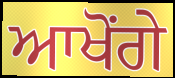
ਆਖੋਂਗੇ